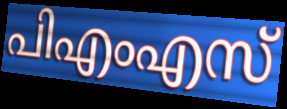
പിഎംഎസ്